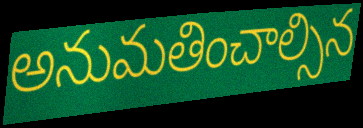
అనుమతించాల్సిన